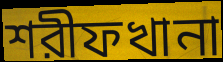
শরীফখানা